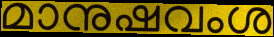
മാനുഷവംശ